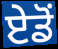
ਏਡੋਂ